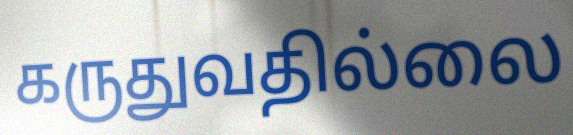
கருதுவதில்லை